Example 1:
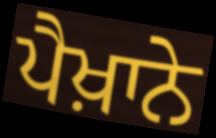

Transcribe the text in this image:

ਪੈਖ਼ਾਨੇ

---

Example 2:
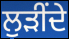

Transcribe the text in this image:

ਲੁੜੀਂਦੇ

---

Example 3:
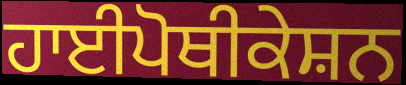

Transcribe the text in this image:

ਹਾਈਪੋਥੀਕੇਸ਼ਨ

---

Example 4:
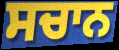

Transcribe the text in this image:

ਸਚਾਨ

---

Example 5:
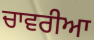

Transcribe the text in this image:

ਚਾਵਰੀਆ